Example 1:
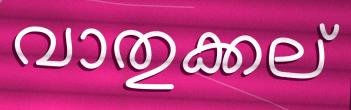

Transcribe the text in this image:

വാതുക്കല്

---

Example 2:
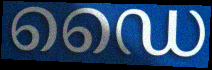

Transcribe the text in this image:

ഡൈ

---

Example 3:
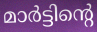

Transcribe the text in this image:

മാർട്ടിന്റെ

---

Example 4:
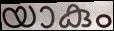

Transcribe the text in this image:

യാകും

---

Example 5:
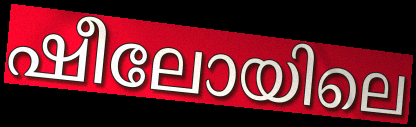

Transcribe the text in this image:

ഷീലോയിലെ